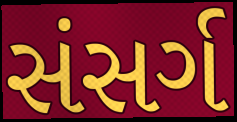
સંસર્ગ